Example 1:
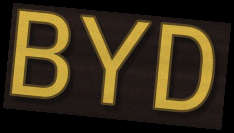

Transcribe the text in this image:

BYD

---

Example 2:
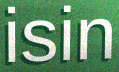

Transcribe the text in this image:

isin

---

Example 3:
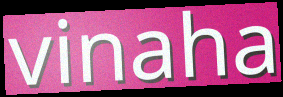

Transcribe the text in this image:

vinaha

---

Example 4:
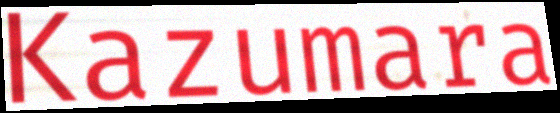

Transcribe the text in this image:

Kazumara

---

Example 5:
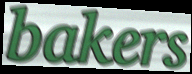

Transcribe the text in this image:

bakers